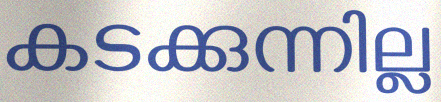
കടക്കുന്നില്ല